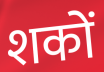
शकों